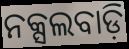
ନକ୍ସଲବାଡ଼ି